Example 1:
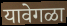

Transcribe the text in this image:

यावेगळा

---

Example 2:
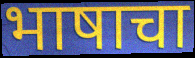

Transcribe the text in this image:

भाषाचा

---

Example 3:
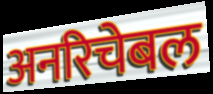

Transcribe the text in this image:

अनरिचेबल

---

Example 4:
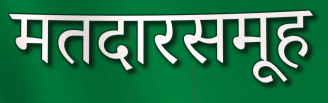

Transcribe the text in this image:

मतदारसमूह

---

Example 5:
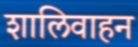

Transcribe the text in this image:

शालिवाहन